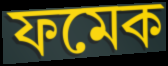
ফমেক